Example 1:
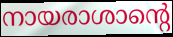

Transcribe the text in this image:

നായരാശാന്റെ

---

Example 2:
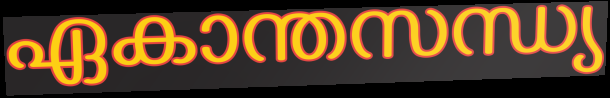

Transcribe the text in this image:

ഏകാന്തസന്ധ്യ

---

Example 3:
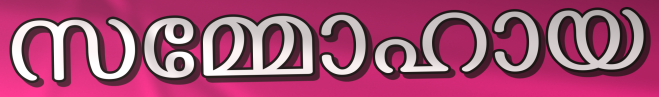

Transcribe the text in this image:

സമ്മോഹായ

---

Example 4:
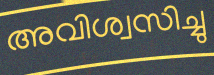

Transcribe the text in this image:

അവിശ്വസിച്ചു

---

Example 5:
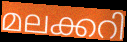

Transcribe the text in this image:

മലക്കറി